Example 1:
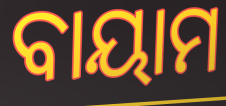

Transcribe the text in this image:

ବାୟାମ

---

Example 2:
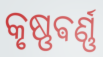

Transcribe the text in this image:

କୃଷ୍ଣଵର୍ଣ୍ଣ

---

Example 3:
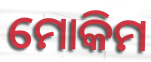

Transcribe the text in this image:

ମୋକିମ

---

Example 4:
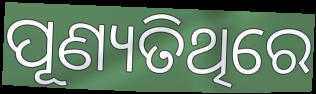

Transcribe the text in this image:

ପୂଣ୍ୟତିଥିରେ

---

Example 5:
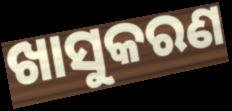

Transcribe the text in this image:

ଖାସୁକରଣ